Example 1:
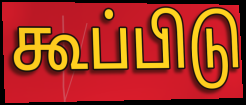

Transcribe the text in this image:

கூப்பிடு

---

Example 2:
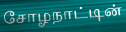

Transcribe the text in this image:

சோழநாட்டின்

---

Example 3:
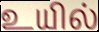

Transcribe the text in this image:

உயில்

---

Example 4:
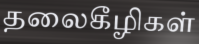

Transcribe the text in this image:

தலைகீழிகள்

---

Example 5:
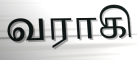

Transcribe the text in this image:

வராகி